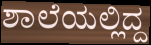
ಶಾಲೆಯಲ್ಲಿದ್ದ